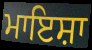
ਮਾਇਸ਼ਾ